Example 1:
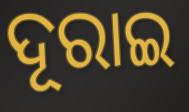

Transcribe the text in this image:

ଦୂରାଇ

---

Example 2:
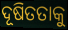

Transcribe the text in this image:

ଦୂଷିତତାକୁ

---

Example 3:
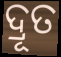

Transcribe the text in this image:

ଦ୍ରୂତ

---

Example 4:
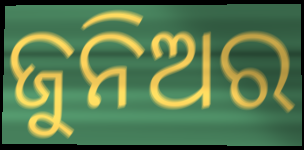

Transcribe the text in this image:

ଜୁନିଅର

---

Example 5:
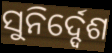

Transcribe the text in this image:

ସୁନିର୍ଦ୍ଦେଶ